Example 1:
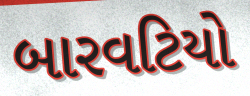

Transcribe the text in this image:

બારવટિયો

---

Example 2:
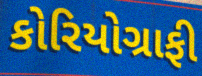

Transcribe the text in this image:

કોરિયોગ્રાફી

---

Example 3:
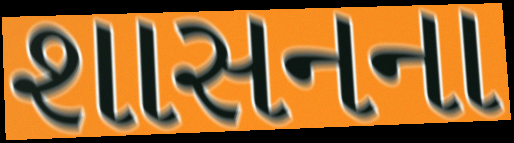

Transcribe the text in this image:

શાસનના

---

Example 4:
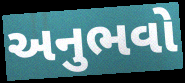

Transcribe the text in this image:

અનુભવો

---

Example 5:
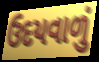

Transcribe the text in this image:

ઉદયવાળું